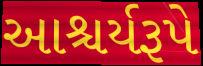
આશ્ચર્યરૂપે